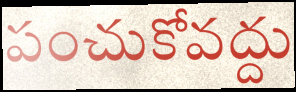
పంచుకోవద్దు